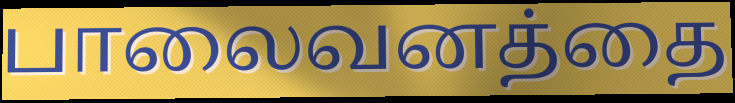
பாலைவனத்தை